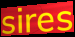
sires